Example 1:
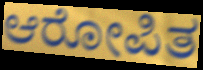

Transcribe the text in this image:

ಆರೋಪಿತ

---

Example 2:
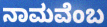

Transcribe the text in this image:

ನಾಮವೆಂಬ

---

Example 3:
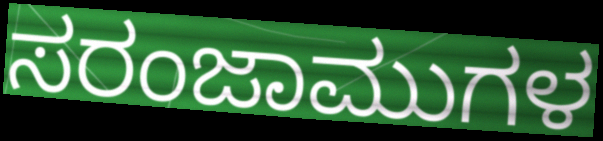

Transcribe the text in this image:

ಸರಂಜಾಮುಗಳ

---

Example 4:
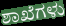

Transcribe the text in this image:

ಶಾಖೆಗಳು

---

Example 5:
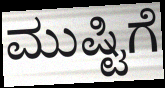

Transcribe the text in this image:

ಮುಷ್ಟಿಗೆ